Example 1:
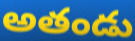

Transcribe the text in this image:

అతండు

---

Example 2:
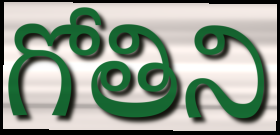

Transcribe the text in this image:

గోతిని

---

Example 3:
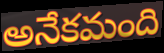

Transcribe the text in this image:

అనేకమంది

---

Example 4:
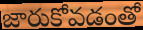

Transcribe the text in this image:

జారుకోవడంతో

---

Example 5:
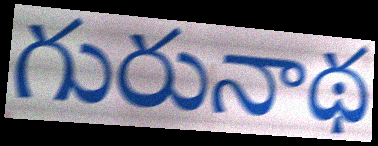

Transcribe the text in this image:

గురునాథ